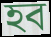
হব